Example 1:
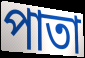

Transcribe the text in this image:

পাতা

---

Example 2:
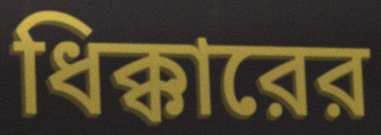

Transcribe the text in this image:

ধিক্কারের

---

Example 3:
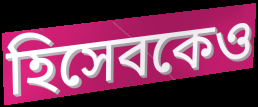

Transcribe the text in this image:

হিসেবকেও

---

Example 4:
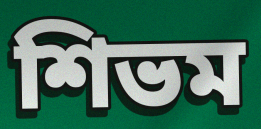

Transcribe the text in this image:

শিভম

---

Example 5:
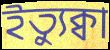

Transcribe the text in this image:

ইত্যুক্বা